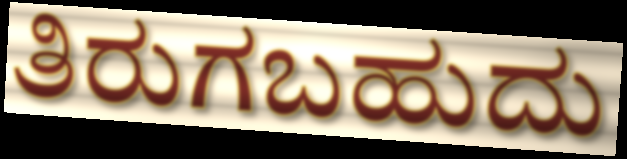
ತಿರುಗಬಹುದು